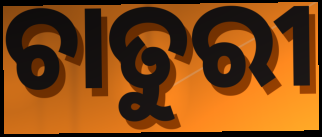
ଚାତୁରୀ